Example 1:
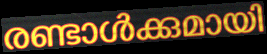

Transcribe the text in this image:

രണ്ടാൾക്കുമായി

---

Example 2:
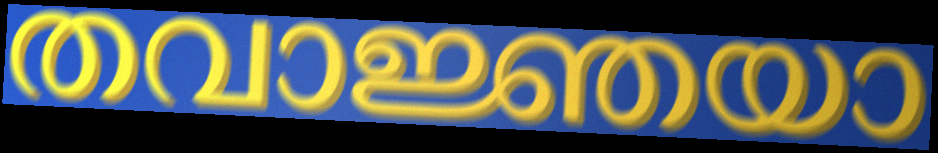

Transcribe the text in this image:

തവാജ്ഞയാ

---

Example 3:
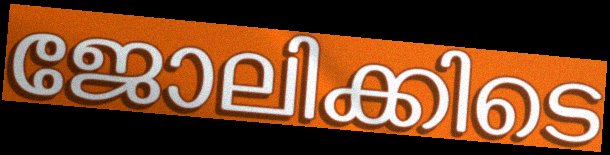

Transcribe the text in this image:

ജോലിക്കിടെ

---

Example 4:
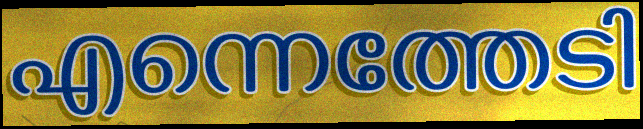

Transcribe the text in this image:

എന്നെത്തേടി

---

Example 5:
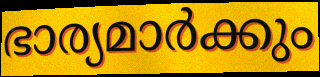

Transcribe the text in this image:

ഭാര്യമാർക്കും